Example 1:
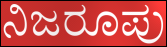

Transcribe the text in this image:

ನಿಜರೂಪು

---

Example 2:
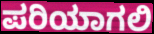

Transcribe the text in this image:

ಪರಿಯಾಗಲಿ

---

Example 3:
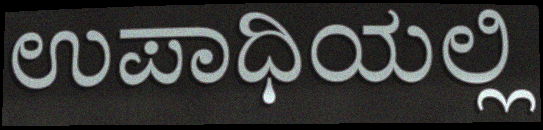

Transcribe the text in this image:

ಉಪಾಧಿಯಲ್ಲಿ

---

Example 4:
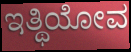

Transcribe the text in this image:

ಇತ್ಥಿಯೋವ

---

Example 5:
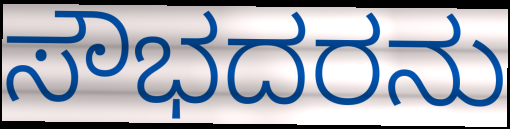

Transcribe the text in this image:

ಸೌಭದರನು